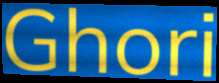
Ghori